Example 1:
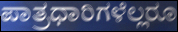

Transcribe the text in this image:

ಪಾತ್ರಧಾರಿಗಳೆಲ್ಲರೂ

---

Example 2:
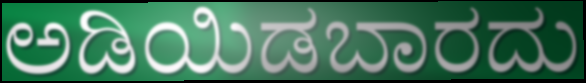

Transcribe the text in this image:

ಅಡಿಯಿಡಬಾರದು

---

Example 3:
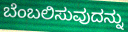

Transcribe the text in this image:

ಬೆಂಬಲಿಸುವುದನ್ನು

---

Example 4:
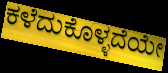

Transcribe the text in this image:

ಕಳೆದುಕೊಳ್ಳದೆಯೇ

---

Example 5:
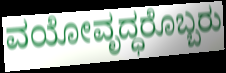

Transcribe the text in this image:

ವಯೋವೃದ್ಧರೊಬ್ಬರು